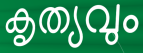
കൃത്യവും